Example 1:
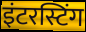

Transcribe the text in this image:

इंटरस्टिंग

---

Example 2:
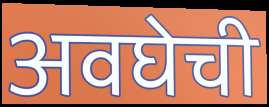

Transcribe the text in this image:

अवघेची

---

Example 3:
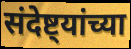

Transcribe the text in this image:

संदेष्ट्यांच्या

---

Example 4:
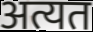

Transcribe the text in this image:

अत्यत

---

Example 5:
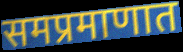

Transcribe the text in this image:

समप्रमाणात